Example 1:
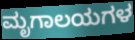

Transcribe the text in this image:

ಮೃಗಾಲಯಗಳ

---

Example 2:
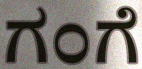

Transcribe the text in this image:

ಗಂಗೆ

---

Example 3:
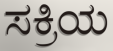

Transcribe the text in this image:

ಸಕ್ರಿಯ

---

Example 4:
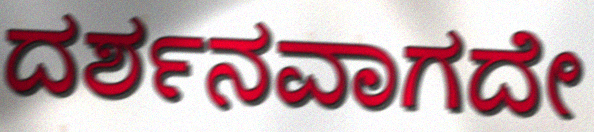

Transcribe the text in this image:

ದರ್ಶನವಾಗದೇ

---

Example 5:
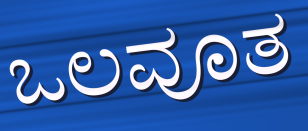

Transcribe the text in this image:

ಒಲವೂತ